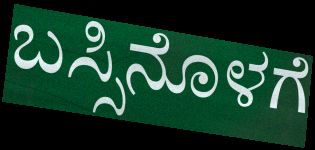
ಬಸ್ಸಿನೊಳಗೆ